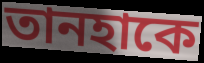
তানহাকে